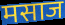
मसाज